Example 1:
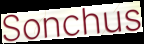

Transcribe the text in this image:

Sonchus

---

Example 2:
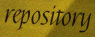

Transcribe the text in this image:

repository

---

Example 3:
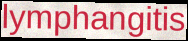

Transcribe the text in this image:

lymphangitis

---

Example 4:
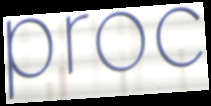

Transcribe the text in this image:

proc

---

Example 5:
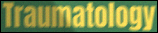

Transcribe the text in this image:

Traumatology